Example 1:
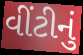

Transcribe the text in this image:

વીંટીનું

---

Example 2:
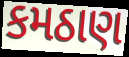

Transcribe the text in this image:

કમઠાણ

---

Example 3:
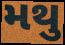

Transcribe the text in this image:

મથુ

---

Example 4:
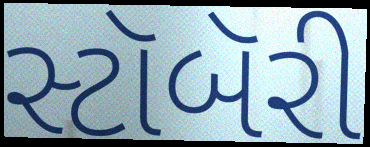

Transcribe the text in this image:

સ્ટૉબૅરી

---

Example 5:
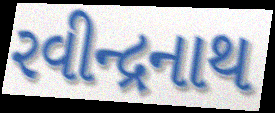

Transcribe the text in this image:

રવીન્દ્રનાથ